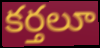
కర్తలూ